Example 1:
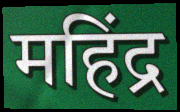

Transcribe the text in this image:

महिंद्र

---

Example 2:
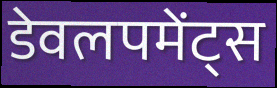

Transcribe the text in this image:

डेवलपमेंट्स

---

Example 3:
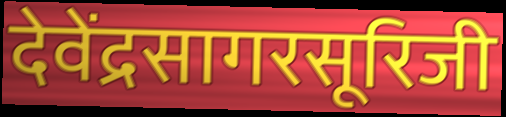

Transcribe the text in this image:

देवेंद्रसागरसूरिजी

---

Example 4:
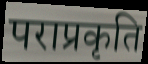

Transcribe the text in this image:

पराप्रकृति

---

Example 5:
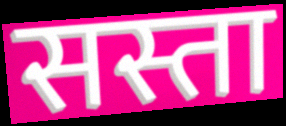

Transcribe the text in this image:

सस्‍ता